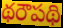
థరౌపథి